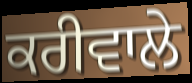
ਕਰੀਵਾਲੇ